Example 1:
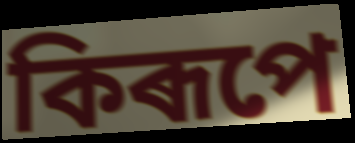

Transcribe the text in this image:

কিৰূপে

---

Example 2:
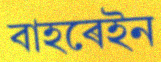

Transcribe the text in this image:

বাহৰেইন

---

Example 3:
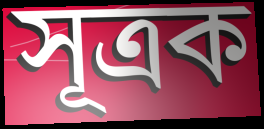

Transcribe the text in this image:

সূত্ৰক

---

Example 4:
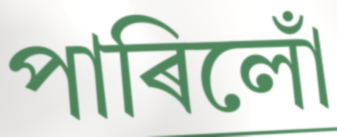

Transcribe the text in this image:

পাৰিলোঁ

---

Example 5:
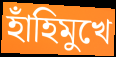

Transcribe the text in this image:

হাঁহিমুখে